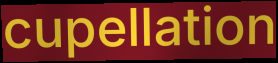
cupellation